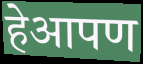
हेआपण